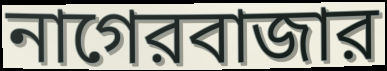
নাগেরবাজার